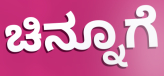
ಚಿನ್ನೂಗೆ